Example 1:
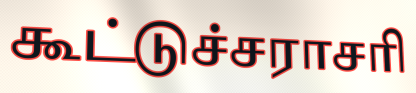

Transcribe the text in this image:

கூட்டுச்சராசரி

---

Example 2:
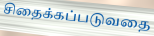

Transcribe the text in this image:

சிதைக்கப்படுவதை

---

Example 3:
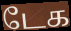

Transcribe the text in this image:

டேக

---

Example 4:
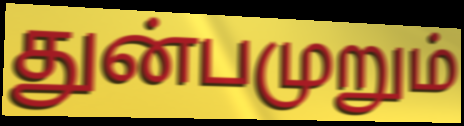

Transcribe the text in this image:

துன்பமுறும்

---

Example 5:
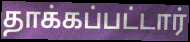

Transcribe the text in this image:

தாக்கப்பட்டார்